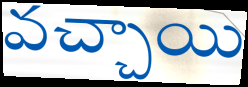
వచ్చాయి